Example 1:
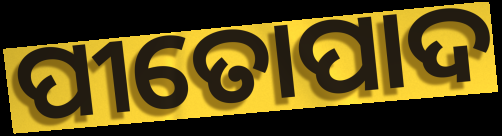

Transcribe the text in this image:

ପୀତୋପାଦ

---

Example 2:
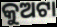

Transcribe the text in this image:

କୁଅଟା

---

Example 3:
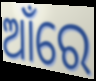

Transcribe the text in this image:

ଆଁରେ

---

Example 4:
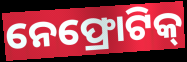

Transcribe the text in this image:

ନେଫ୍ରୋଟିକ୍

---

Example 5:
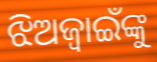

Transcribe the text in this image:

ଝିଅଜ୍ୱାଇଁଙ୍କୁ